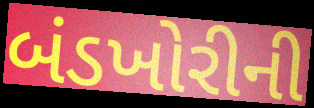
બંડખોરીની